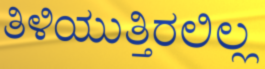
ತಿಳಿಯುತ್ತಿರಲಿಲ್ಲ